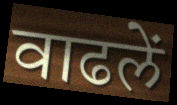
वाढलें